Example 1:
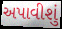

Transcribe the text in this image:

અપાવીશું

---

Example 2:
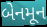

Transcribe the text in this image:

બેનમૂન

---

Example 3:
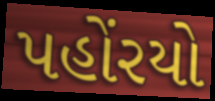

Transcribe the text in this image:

પહોંરયો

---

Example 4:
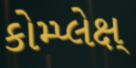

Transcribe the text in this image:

કોમ્પ્લેક્ષ્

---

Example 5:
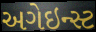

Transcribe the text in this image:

અગેઇન્સ્ટ